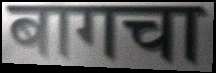
बागचा